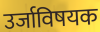
उर्जाविषयक